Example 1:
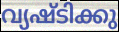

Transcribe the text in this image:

വ്യഷ്ടിക്കു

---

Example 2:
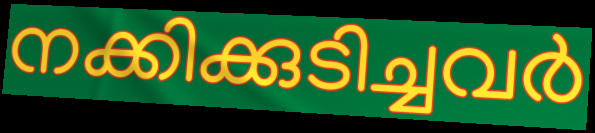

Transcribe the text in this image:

നക്കിക്കുടിച്ചവർ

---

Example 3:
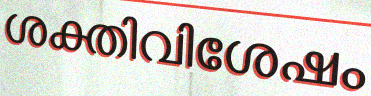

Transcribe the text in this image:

ശക്തിവിശേഷം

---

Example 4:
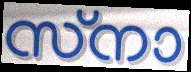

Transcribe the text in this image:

സ്‌നാ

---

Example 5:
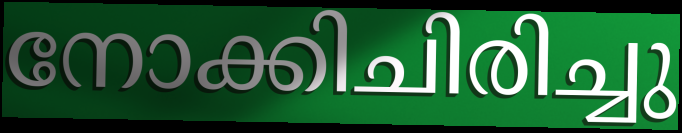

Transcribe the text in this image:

നോക്കിചിരിച്ചു